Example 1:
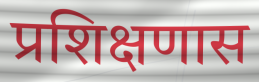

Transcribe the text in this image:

प्रशिक्षणास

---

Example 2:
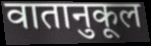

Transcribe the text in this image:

वातानुकूल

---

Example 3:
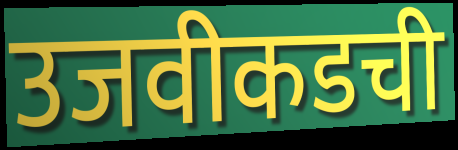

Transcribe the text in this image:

उजवीकडची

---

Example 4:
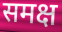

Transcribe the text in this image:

समक्ष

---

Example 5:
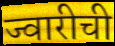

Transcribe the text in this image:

ज्वारीची